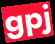
gpj